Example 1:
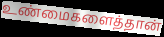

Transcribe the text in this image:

உண்மைகளைத்தான்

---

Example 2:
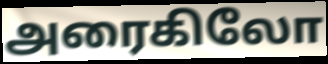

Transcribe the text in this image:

அரைகிலோ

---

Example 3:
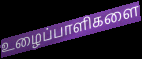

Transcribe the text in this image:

உழைப்பாளிகளை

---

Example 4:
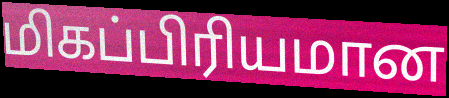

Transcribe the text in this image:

மிகப்பிரியமான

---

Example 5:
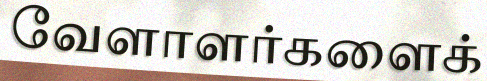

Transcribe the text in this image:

வேளாளர்களைக்